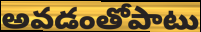
అవడంతోపాటు